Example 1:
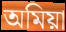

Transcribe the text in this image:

অমিয়া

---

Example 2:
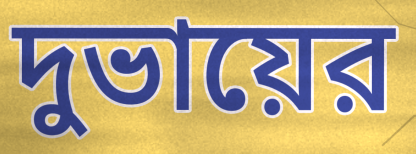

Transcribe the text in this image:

দুভায়ের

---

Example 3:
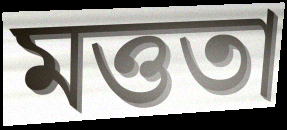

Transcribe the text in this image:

মত্ততা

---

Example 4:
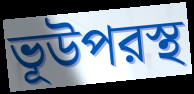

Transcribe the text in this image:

ভূউপরস্থ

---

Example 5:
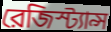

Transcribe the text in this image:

রেজিস্ট্যান্স